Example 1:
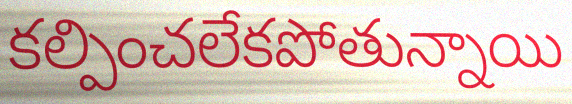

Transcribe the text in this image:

కల్పించలేకపోతున్నాయి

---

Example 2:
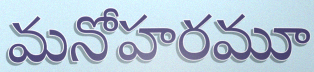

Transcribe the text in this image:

మనోహరమూ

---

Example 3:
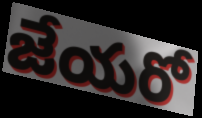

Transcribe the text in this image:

జేయరో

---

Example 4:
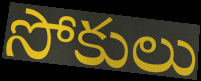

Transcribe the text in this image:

సోకులు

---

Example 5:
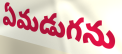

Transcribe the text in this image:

ఏమడుగను